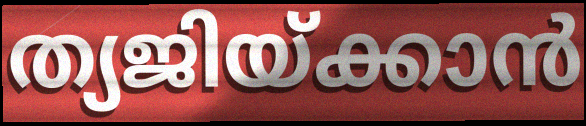
ത്യജിയ്ക്കാൻ